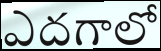
ఎదగాలో